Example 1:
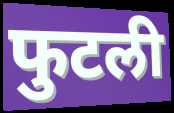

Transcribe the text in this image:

फुटली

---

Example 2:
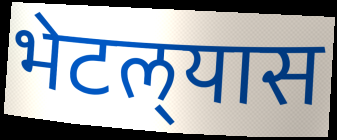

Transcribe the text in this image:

भेटल्यास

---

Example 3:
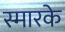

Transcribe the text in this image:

स्मारके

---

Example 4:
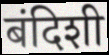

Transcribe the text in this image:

बंदिशी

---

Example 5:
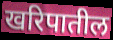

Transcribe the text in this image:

खरिपातील